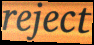
reject